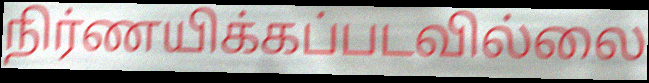
நிர்ணயிக்கப்படவில்லை